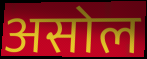
असोल